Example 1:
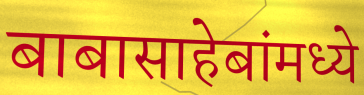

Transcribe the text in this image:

बाबासाहेबांमध्ये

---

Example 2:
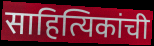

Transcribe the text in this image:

साहित्यिकांची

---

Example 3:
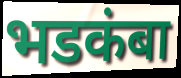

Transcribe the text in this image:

भडकंबा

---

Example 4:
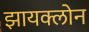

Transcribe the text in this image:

झायक्लोन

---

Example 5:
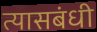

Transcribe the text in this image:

त्यासबंधी